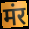
मंर